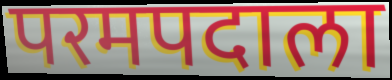
परमपदाला